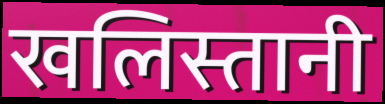
खलिस्तानी